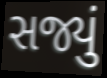
સજ્યું